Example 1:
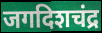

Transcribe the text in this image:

जगदिशचंद्र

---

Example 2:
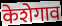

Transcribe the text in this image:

केशेगाव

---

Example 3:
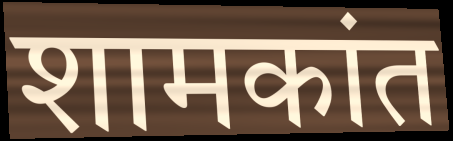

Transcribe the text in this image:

शामकांत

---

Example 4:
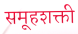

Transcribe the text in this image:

समूहशक्ती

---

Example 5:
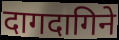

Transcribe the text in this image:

दागदागिने